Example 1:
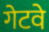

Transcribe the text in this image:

गेटवे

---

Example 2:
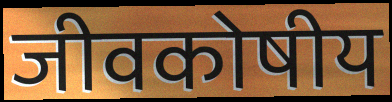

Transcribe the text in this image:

जीवकोषीय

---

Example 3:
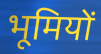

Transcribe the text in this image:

भूमियों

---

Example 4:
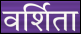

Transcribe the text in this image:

वर्शिता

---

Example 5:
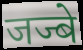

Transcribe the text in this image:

जज्बे